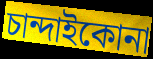
চান্দাইকোনা